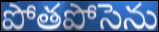
పోతపోసెను